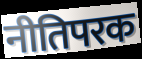
नीतिपरक